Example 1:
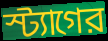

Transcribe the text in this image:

স্ট্যাগের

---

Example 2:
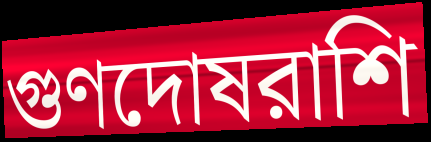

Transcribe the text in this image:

গুণদোষরাশি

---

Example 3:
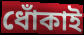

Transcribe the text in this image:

ধোঁকাই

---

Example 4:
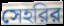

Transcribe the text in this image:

সেহরির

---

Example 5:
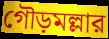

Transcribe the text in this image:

গৌড়মল্লার